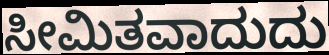
ಸೀಮಿತವಾದುದು